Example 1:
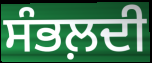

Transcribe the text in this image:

ਸੰਭਲ਼ਦੀ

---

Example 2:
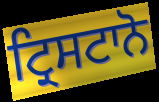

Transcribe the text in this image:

ਟ੍ਰਿਸਟਾਨੋ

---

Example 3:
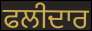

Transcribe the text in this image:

ਫਲੀਦਾਰ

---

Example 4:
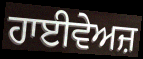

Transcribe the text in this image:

ਹਾਈਵੇਅਜ਼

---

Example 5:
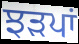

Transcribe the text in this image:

ਝੜਪਾਂ